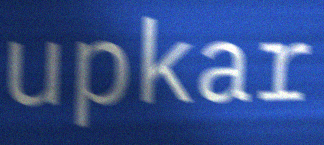
upkar